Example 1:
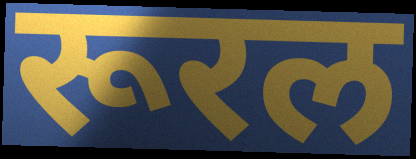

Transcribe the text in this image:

रूरल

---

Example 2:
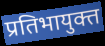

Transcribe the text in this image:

प्रतिभायुक्त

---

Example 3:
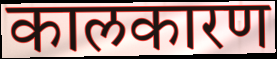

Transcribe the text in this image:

कालकारण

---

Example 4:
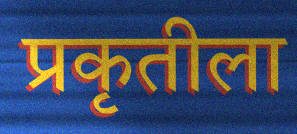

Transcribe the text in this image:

प्रकृतीला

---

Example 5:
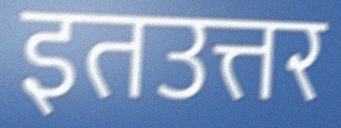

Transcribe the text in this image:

इतउत्तर